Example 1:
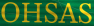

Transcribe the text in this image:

OHSAS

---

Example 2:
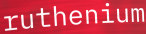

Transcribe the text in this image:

ruthenium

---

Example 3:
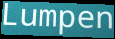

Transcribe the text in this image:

Lumpen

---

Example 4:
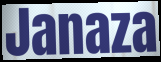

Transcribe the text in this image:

Janaza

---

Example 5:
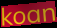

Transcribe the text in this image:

koan